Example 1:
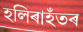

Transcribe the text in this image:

হলিৰাহঁতৰ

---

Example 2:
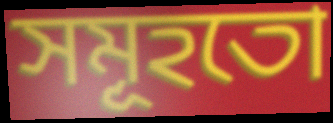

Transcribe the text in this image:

সমূহতো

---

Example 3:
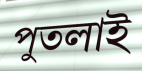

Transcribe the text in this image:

পুতলাই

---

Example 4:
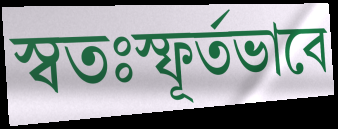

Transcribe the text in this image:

স্বতঃস্ফূৰ্তভাবে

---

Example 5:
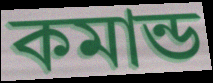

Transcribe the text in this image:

কমান্ড